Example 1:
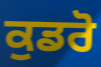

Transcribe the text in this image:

ਕੁਡਰੋ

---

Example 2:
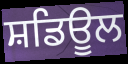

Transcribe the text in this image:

ਸ਼ਡਿਊਲ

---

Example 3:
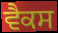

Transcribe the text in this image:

ਵੈਕਸ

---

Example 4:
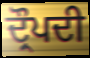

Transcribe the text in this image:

ਦ੍ਰੌਪਦੀ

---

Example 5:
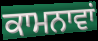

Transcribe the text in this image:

ਕਾਮਨਾਵਾਂ